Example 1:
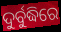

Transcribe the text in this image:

ଦୁର୍ବୁଦ୍ଧିରେ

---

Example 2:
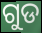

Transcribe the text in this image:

ଗୁଡ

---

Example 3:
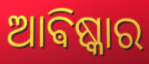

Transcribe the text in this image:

ଆଵିଷ୍କାର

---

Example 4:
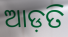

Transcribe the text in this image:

ଆଡ଼ତି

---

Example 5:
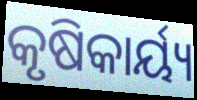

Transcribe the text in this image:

କୃଷିକାର୍ୟ୍ୟ